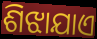
ଶିଝାଯାଏ